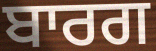
ਬਾਰਗ